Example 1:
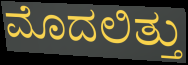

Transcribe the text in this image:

ಮೊದಲಿತ್ತು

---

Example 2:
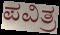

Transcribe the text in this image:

ಪವಿತ್ರ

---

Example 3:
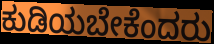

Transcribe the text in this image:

ಕುಡಿಯಬೇಕೆಂದರು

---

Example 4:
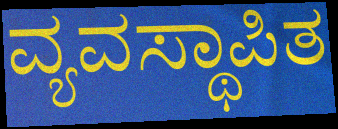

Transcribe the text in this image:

ವ್ಯವಸ್ಥಾಪಿತ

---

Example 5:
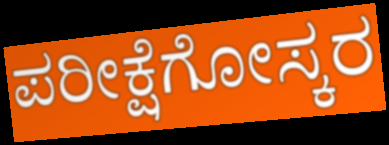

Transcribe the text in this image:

ಪರೀಕ್ಷೆಗೋಸ್ಕರ